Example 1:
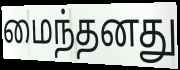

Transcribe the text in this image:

மைந்தனது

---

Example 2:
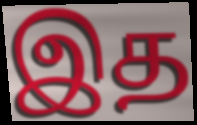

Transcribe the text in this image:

இத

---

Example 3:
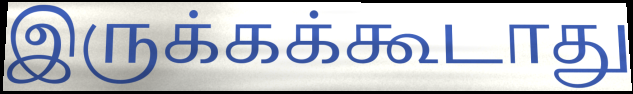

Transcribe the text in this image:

இருக்கக்கூடாது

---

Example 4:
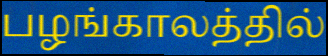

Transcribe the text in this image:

பழங்காலத்தில்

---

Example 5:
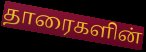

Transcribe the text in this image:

தாரைகளின்